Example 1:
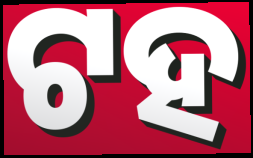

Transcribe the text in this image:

ଟହ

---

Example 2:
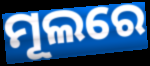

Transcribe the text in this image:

ମୂଲରେ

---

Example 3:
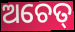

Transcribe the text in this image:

ଅଚେତ୍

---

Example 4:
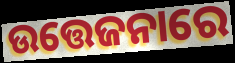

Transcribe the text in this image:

ଉତ୍ତେଜନାରେ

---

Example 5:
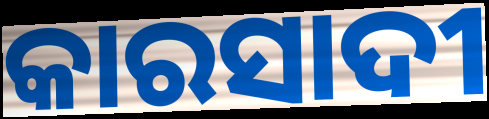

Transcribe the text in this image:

କାରସାଦୀ